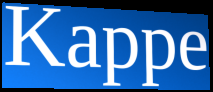
Kappe